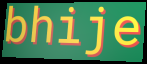
bhije